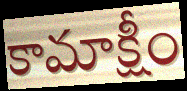
కామాక్షీం